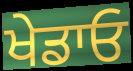
ਖੇਡਾਓ